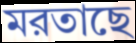
মরতাছে